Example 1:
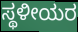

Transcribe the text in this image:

ಸ್ಥಳೀಯರ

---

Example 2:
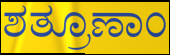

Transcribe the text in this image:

ಶತ್ರೂಣಾಂ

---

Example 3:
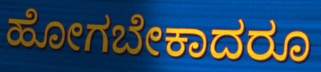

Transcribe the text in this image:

ಹೋಗಬೇಕಾದರೂ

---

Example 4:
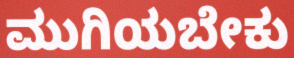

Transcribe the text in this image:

ಮುಗಿಯಬೇಕು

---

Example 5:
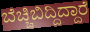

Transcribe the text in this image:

ಬೆಚ್ಚಿಬಿದ್ದಿದ್ದಾರೆ